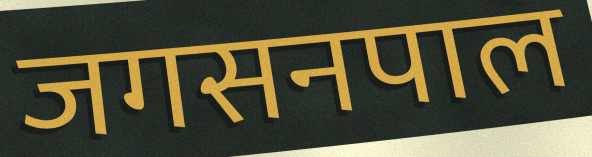
जगसनपाल